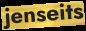
jenseits